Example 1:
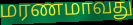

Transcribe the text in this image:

மரணமாவது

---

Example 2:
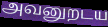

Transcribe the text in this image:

அவனுறடய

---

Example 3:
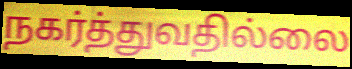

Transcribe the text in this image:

நகர்த்துவதில்லை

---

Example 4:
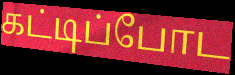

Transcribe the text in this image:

கட்டிப்போட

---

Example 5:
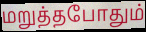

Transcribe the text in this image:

மறுத்தபோதும்